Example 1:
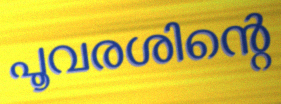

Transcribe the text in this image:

പൂവരശിന്റെ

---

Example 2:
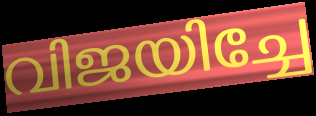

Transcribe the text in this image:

വിജയിച്ചേ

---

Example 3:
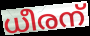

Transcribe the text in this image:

ധീരന്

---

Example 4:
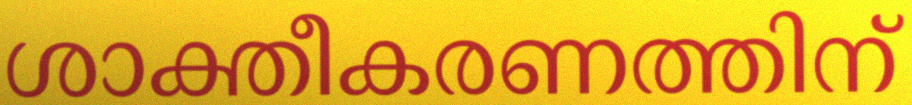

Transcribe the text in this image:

ശാക്തീകരണത്തിന്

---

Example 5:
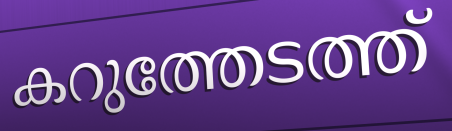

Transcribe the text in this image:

കറുത്തേടത്ത്